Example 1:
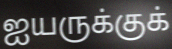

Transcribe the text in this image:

ஐயருக்குக்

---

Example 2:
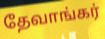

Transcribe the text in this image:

தேவாங்கர்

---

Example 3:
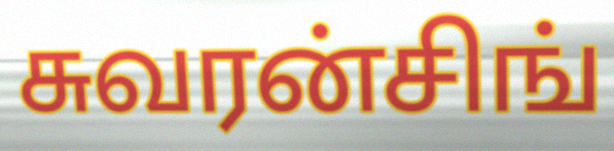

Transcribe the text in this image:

சுவரன்சிங்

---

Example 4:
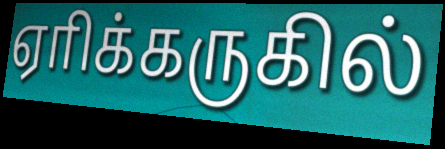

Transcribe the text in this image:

ஏரிக்கருகில்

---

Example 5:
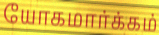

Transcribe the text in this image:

யோகமார்க்கம்